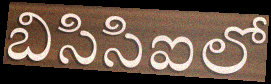
బిసిసిఐలో